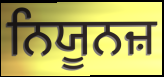
ਨਿਯੂਨਜ਼